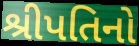
શ્રીપતિનો